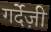
गर्देज़ी